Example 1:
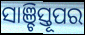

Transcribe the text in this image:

ସାଞ୍ଚିସ୍ତୂପର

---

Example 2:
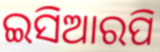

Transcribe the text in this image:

ଇସିଆରପି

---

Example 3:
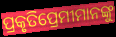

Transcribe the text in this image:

ପ୍ରକୃତିପ୍ରେମୀମାନଙ୍କୁ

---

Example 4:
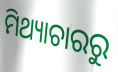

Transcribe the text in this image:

ମିଥ୍ୟାଚାରରୁ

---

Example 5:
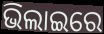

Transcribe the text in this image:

ଭିଲାଇରେ